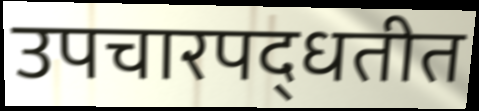
उपचारपद्धतीत